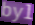
byl